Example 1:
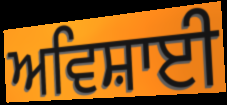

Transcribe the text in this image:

ਅਵਿਸ਼ਾਈ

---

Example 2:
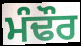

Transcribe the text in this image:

ਮੰਢੌਰ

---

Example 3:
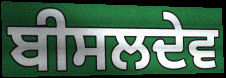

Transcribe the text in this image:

ਬੀਸਲਦੇਵ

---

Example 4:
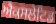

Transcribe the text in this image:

ਐਕਸਲੇਟਿਡ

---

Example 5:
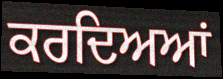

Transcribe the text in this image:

ਕਰਦਿਅਆਂ